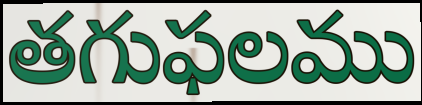
తగుఫలము